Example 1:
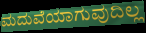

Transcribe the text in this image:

ಮದುವೆಯಾಗುವುದಿಲ್ಲ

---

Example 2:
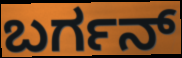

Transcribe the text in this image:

ಬರ್ಗನ್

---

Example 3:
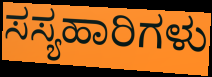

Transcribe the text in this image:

ಸಸ್ಯಹಾರಿಗಳು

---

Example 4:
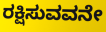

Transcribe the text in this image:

ರಕ್ಷಿಸುವವನೇ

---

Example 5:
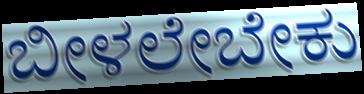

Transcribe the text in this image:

ಬೀಳಲೇಬೇಕು